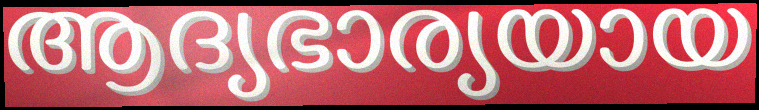
ആദ്യഭാര്യയായ